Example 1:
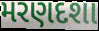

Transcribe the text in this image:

મરણદશા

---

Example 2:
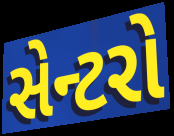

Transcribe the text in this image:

સેન્ટરો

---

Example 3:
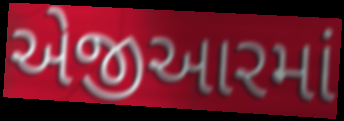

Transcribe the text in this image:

એજીઆરમાં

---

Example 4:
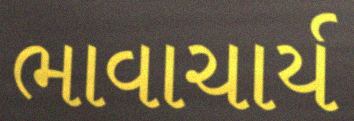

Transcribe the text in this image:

ભાવાચાર્ય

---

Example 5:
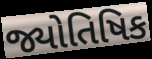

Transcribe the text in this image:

જ્યોતિષિક